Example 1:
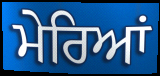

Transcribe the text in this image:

ਮੇਰਿਆਂ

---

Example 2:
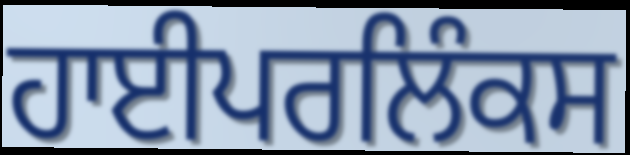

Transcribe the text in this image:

ਹਾਈਪਰਲਿੰਕਸ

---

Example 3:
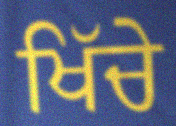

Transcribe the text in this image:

ਖਿੱਚੇ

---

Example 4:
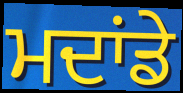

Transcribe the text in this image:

ਮਦਾਂਡੇ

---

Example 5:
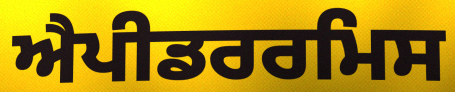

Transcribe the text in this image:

ਐਪੀਡਰਰਮਿਸ